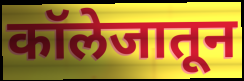
कॉलेजातून